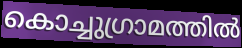
കൊച്ചുഗ്രാമത്തിൽ